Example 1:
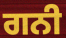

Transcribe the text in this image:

ਗਨੀ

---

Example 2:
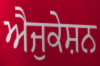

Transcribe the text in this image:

ਐਜੁਕੇਸ਼ਨ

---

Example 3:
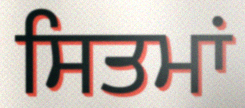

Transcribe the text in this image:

ਸਿਤਮਾਂ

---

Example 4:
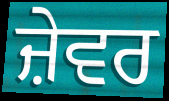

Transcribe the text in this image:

ਜ਼ੇਵਰ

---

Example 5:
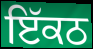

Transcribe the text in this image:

ਇੱਕਠ